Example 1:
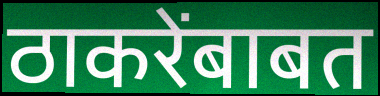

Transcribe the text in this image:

ठाकरेंबाबत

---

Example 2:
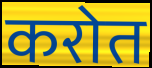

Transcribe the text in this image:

करोत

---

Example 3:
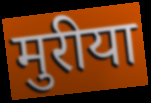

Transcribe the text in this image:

मुरीया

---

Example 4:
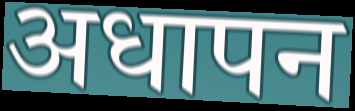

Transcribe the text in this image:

अधापन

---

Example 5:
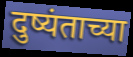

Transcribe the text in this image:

दुष्यंताच्या